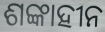
ଶଙ୍କାହୀନ